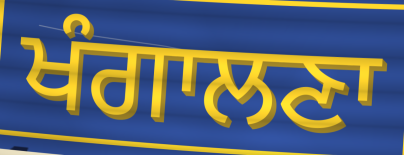
ਖੰਗਾਲਣਾ